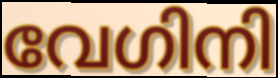
വേഗിനി